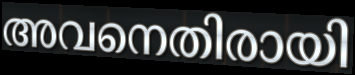
അവനെതിരായി